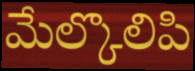
మేల్కొలిపి